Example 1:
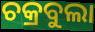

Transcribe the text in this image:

ଚକ୍ରବୁଲା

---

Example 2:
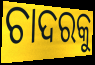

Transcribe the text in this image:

ଚାଦରକୁ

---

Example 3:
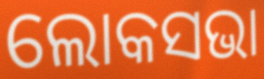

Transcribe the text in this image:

ଲୋକସଭା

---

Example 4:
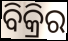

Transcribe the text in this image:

ବିକ୍ରିର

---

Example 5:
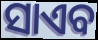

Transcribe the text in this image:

ସାଏବ